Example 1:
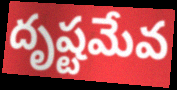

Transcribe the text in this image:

దృష్టమేవ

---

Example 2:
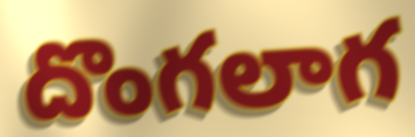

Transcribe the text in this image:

దొంగలాగ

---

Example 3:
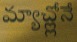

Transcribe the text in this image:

మ్యాచ్ల్లోనే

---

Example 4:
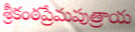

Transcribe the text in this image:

శ్రీకంఠప్రేమపుత్రాయ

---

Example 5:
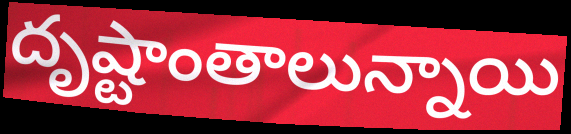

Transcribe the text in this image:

దృష్టాంతాలున్నాయి